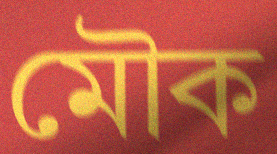
মৌক